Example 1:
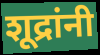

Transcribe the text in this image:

शूद्रांनी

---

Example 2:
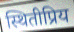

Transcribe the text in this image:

स्थितीप्रिय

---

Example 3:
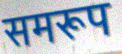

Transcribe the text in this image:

समरूप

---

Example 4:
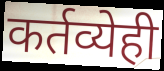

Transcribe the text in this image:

कर्तव्येही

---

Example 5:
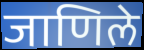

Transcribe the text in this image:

जाणिले